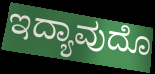
ಇದ್ಯಾವುದೊ